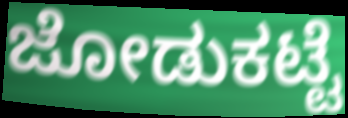
ಜೋಡುಕಟ್ಟೆ